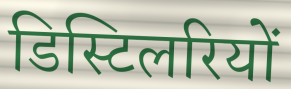
डिस्टिलरियों